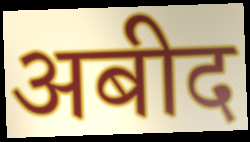
अबीद